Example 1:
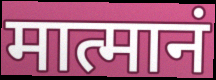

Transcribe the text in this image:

मात्मानं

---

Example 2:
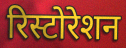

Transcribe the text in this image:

रिस्टोरेशन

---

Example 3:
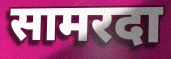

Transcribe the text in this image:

सामरदा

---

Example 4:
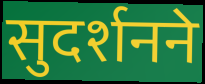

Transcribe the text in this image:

सुदर्शनने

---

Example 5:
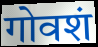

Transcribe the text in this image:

गोवशं